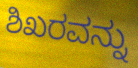
ಶಿಖರವನ್ನು